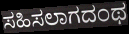
ಸಹಿಸಲಾಗದಂಥ